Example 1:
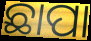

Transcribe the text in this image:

ଛାପା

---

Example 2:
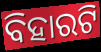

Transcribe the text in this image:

ବିହାରଟି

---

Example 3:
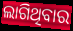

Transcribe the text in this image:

ଲାଗିଥିବାର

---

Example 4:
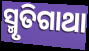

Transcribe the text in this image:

ସ୍ମୃତିଗାଥା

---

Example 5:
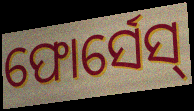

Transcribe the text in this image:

ଫୋର୍ସେସ୍